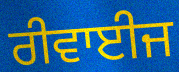
ਰੀਵਾਈਜ